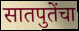
सातपुतेंचा